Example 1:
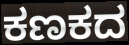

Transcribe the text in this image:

ಕಣಕದ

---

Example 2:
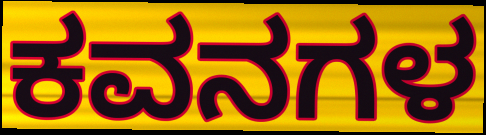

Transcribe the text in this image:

ಕವನಗಳ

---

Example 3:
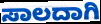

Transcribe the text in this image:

ಸಾಲದಾಗಿ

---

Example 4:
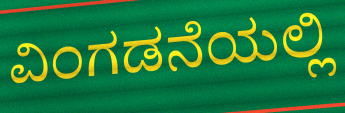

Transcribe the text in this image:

ವಿಂಗಡನೆಯಲ್ಲಿ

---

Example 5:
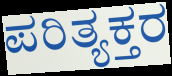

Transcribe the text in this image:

ಪರಿತ್ಯಕ್ತರ